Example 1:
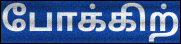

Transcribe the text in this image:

போக்கிற்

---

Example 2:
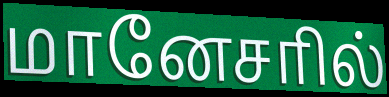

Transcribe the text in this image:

மானேசரில்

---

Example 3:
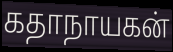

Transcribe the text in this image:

கதாநாயகன்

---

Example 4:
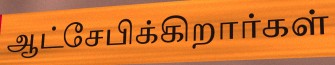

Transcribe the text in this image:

ஆட்சேபிக்கிறார்கள்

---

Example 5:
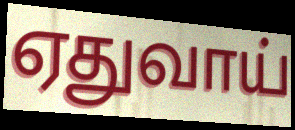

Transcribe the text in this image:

ஏதுவாய்